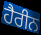
ਹੈਰੀਨ